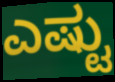
ಎಷ್ಟು